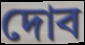
দোব